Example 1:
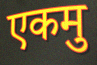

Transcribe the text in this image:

एकमु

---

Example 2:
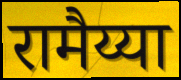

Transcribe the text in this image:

रामैय्या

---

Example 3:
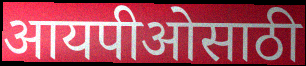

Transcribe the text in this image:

आयपीओसाठी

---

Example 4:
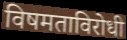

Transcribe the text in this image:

विषमताविरोधी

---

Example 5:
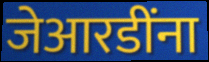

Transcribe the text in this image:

जेआरडींना